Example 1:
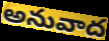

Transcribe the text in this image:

అనువాద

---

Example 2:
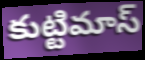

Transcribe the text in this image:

కుట్టిమాస్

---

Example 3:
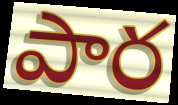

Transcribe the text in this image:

పార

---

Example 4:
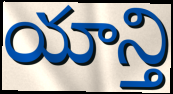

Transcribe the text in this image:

యాన్తి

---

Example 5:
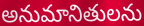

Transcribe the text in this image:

అనుమానితులను